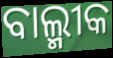
ବାଲ୍ମୀକ